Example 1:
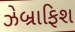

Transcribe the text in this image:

ઝેબ્રાફિશ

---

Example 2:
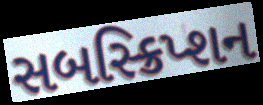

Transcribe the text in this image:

સબસ્ક્રિપ્શન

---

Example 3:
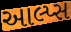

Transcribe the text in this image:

આલ્પ્સ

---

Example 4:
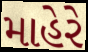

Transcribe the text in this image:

માહેરે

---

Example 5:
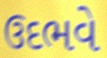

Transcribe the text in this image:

ઉદભવે